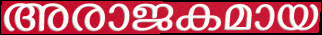
അരാജകമായ